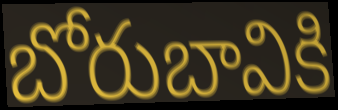
బోరుబావికి